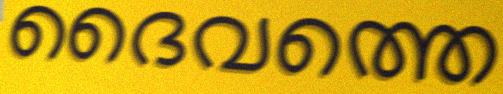
ദൈവത്തെ